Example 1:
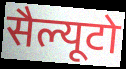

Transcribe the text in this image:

सैल्यूटो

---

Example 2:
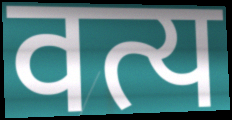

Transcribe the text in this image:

वत्य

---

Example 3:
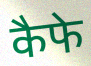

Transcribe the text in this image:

कैफे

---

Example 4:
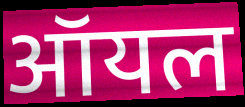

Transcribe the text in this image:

ऑयल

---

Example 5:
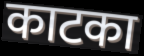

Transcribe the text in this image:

काटका